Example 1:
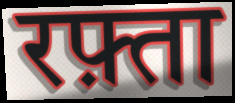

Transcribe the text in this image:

रफ़्ता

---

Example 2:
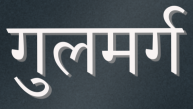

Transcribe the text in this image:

गुलमर्ग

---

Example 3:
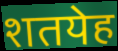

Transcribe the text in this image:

शतयेह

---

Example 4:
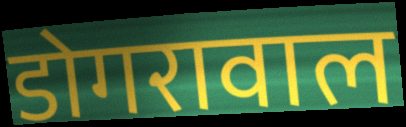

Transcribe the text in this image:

डोगरावाल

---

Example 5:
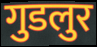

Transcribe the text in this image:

गुडलुर